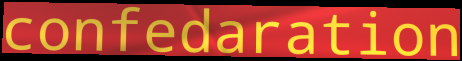
confedaration